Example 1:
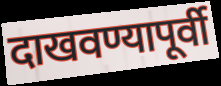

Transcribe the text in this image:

दाखवण्यापूर्वी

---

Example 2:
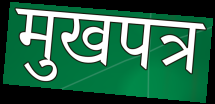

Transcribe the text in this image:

मुखपत्र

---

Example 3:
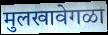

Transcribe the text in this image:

मुलखावेगळा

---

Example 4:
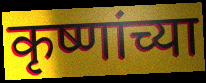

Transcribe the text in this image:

कृष्णांच्या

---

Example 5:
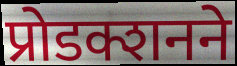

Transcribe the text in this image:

प्रोडक्शनने